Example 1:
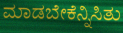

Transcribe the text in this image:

ಮಾಡಬೇಕೆನ್ನಿಸಿತು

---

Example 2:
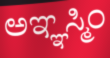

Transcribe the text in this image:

ಅಞ್ಞಸ್ಮಿಂ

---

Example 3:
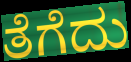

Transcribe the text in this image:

ತೆಗೆದು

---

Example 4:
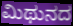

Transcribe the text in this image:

ಮಿಥುನದ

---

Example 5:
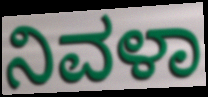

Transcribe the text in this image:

ನಿವಳಾ